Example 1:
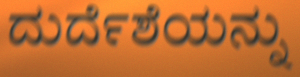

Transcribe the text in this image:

ದುರ್ದೆಶೆಯನ್ನು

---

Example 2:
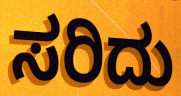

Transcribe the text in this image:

ಸರಿದು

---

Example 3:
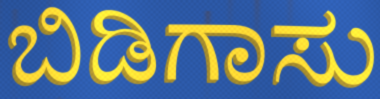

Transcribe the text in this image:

ಬಿಡಿಗಾಸು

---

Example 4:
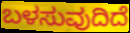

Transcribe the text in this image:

ಬಳಸುವುದಿದೆ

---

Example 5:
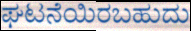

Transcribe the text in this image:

ಘಟನೆಯಿರಬಹುದು